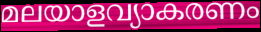
മലയാളവ്യാകരണം